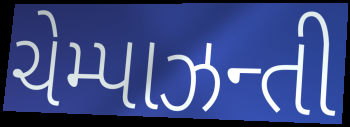
ચેમ્પાઝન્તી